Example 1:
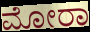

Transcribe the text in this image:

ಮೋರಾ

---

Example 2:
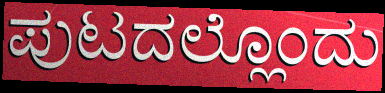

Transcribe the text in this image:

ಪುಟದಲ್ಲೊಂದು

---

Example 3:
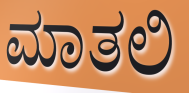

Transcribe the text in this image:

ಮಾತಲಿ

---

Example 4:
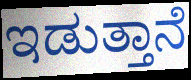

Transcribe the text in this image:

ಇಡುತ್ತಾನೆ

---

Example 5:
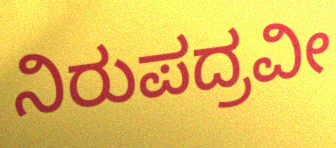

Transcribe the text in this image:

ನಿರುಪದ್ರವೀ